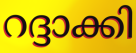
റദ്ദാക്കി